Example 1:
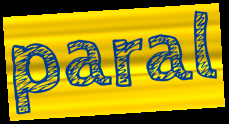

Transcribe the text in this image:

paral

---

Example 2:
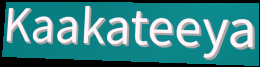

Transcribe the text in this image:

Kaakateeya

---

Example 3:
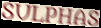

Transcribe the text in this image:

SULPHAS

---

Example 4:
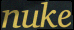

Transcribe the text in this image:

nuke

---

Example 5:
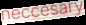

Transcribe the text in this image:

neccesary